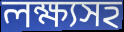
লক্ষ্যসহ